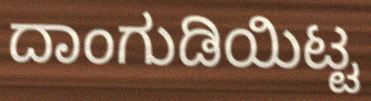
ದಾಂಗುಡಿಯಿಟ್ಟ